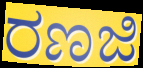
ರಣಜಿ